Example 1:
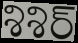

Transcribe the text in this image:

శిశిర్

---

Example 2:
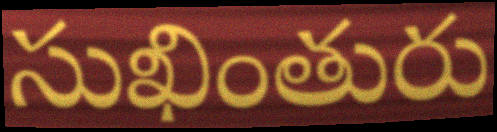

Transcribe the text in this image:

సుఖింతురు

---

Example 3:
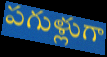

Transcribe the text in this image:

పగుళ్లుగా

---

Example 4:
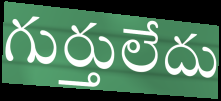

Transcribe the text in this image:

గుర్తులేదు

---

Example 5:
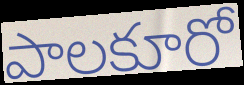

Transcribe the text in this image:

పాలకూరో